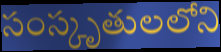
సంస్కృతులలోని